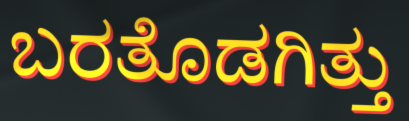
ಬರತೊಡಗಿತ್ತು